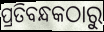
ପ୍ରତିବନ୍ଧକଠାରୁ